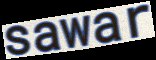
sawar